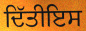
ਦਿੱਤੀਇਸ